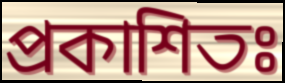
প্রকাশিতঃ